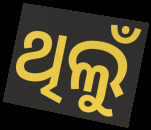
ଥିଲୁଁ